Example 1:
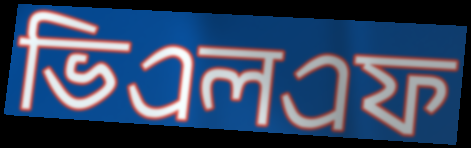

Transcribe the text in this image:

ভিএলএফ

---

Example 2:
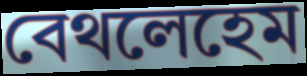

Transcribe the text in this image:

বেথলেহেম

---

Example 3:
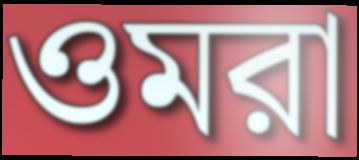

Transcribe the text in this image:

ওমরা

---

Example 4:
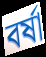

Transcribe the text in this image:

বর্ষা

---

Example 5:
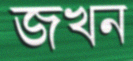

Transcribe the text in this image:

জখন